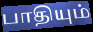
பாதியும்